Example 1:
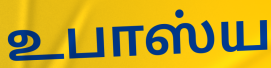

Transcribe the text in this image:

உபாஸ்ய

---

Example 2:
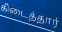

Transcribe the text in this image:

கிடைத்தார்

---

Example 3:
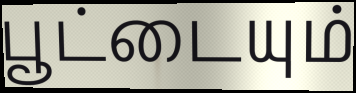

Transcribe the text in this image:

பூட்டையும்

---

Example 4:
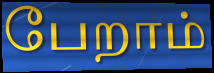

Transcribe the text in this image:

பேறாம்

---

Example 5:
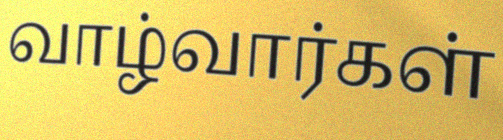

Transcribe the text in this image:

வாழ்வார்கள்